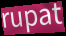
rupat